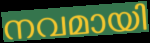
നവമായി